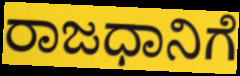
ರಾಜಧಾನಿಗೆ